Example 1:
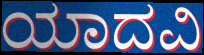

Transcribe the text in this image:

ಯಾದವಿ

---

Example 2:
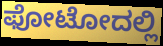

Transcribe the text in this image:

ಫೋಟೋದಲ್ಲಿ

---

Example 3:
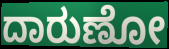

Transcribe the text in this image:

ದಾರುಣೋ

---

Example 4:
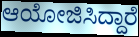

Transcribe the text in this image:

ಆಯೋಜಿಸಿದ್ದಾರೆ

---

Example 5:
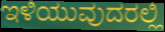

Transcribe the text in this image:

ಇಳಿಯುವುದರಲ್ಲಿ